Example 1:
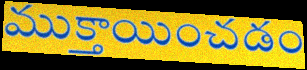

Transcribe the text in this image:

ముక్తాయించడం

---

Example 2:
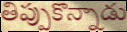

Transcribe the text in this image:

తిప్పుకొన్నాడు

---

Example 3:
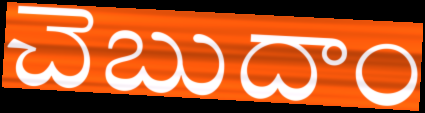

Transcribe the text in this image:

చెబుదాం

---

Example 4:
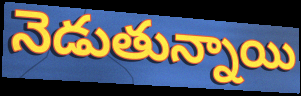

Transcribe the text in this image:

నెడుతున్నాయి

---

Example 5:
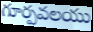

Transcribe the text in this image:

గూర్పవలయు